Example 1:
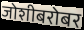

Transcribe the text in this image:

जोशीबरोबर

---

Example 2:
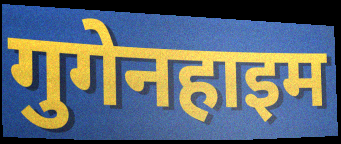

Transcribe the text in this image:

गुगेनहाइम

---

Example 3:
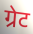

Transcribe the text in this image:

ग्रेट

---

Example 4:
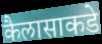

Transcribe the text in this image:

कैलासाकडे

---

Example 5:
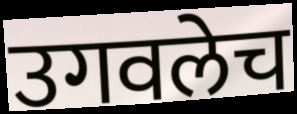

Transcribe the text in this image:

उगवलेच